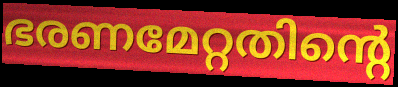
ഭരണമേറ്റതിന്റെ